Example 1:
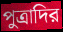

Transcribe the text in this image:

পুত্রাদির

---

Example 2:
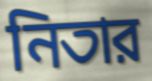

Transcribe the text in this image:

নিতার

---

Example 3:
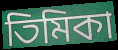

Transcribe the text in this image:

তিমিকা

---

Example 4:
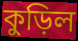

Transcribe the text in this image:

কুড়িল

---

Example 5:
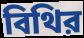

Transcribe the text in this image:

বিথির